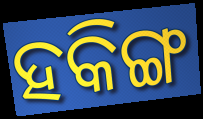
ହକିଙ୍ଗ